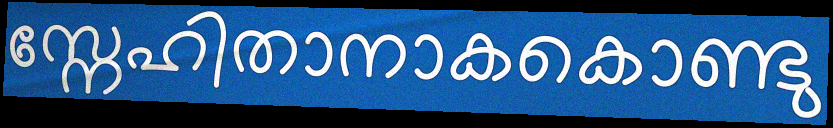
സ്നേഹിതാനാകകൊണ്ടു